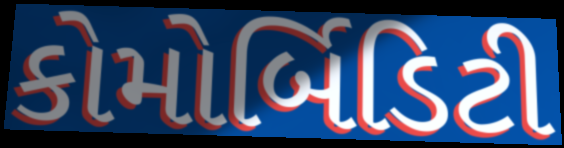
કોમોર્બિડિટી